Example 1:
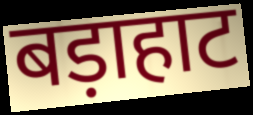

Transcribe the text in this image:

बड़ाहाट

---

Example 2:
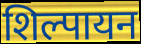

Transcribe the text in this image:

शिल्पायन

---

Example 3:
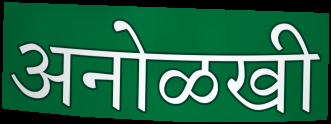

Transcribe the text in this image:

अनोळखी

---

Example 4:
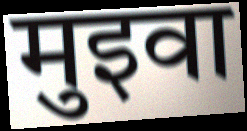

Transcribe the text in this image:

मुइवा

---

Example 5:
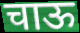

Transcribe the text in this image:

चाऊ